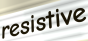
resistive